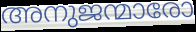
അനുജന്മാരോ